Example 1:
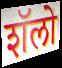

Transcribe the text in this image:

शॅलो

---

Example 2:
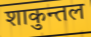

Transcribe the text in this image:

शाकुन्तल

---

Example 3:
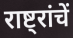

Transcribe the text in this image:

राष्ट्रांचें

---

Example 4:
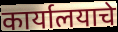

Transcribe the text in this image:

कार्यालयाचे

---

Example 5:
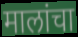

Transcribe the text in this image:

मालांचा